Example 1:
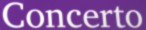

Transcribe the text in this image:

Concerto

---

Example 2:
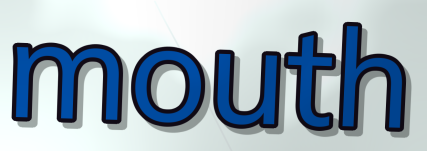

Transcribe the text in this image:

mouth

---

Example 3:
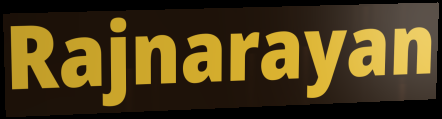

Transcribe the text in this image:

Rajnarayan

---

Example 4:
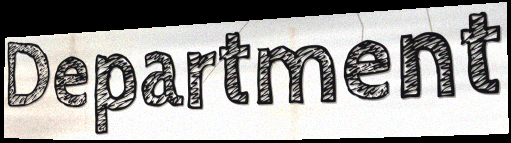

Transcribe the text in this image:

Department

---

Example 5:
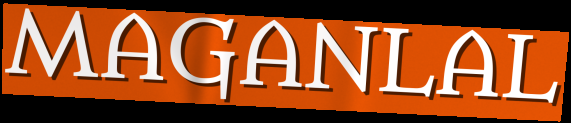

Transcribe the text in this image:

MAGANLAL